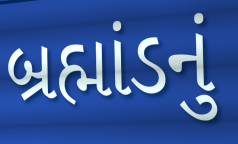
બ્રહ્માંડનું